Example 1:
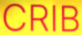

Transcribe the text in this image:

CRIB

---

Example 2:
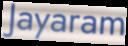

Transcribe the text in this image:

Jayaram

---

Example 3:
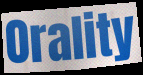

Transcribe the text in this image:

Orality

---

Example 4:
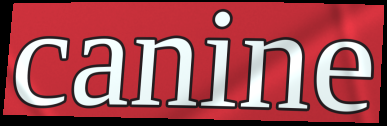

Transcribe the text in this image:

canine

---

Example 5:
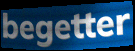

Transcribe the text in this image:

begetter